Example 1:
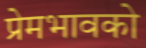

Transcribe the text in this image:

प्रेमभावको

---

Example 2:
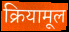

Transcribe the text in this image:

क्रियामूल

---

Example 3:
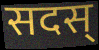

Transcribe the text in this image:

सदस्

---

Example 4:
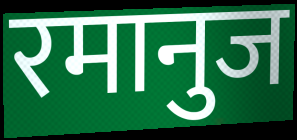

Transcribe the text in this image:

रमानुज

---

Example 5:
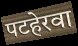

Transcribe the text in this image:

पटहेरवा